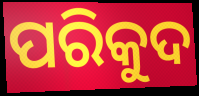
ପରିକୁଦ